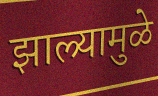
झाल्यामुळे